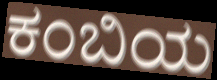
ಕಂಬಿಯ